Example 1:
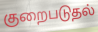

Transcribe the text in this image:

குறைபடுதல்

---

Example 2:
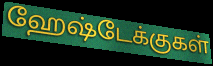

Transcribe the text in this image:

ஹேஷ்டேக்குகள்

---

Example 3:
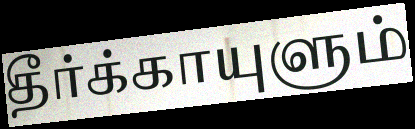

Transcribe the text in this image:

தீர்க்காயுளும்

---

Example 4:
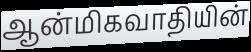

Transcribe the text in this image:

ஆன்மிகவாதியின்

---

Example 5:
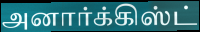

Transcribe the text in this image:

அனார்க்கிஸ்ட்